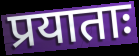
प्रयाताः